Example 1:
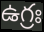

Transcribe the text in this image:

ఉగ్రః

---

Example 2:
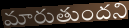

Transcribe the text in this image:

మారుతుందని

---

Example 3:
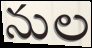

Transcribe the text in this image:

నుల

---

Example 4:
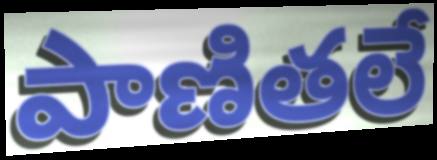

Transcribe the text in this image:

పాణితలే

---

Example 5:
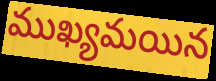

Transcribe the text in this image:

ముఖ్యమయిన